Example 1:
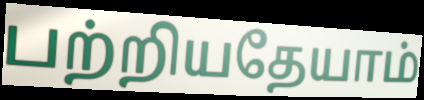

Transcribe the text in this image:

பற்றியதேயாம்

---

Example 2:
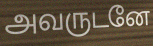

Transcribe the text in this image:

அவருடனே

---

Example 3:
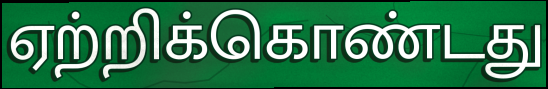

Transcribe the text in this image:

ஏற்றிக்கொண்டது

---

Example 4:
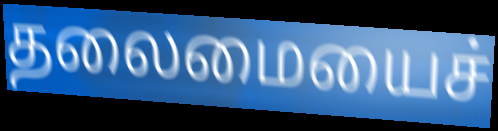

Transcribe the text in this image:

தலைமையைச்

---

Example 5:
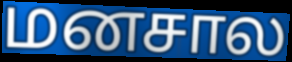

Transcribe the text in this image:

மனசால